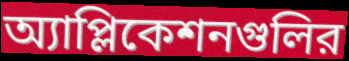
অ্যাপ্লিকেশনগুলির